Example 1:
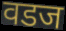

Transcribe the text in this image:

वडज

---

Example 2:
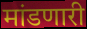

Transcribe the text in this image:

मांडणारी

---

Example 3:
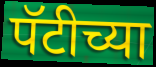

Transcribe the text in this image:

पॅटीच्या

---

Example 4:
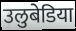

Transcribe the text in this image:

उलुबेडिया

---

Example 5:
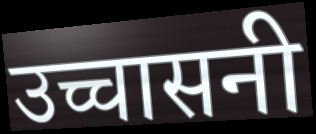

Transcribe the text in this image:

उच्चासनी